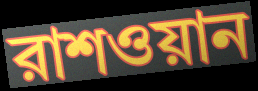
রাশওয়ান